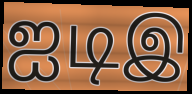
ஐடிஇ